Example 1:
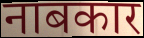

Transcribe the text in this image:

नाबकार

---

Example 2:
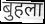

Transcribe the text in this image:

बुहला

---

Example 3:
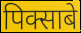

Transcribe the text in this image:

पिक्साबे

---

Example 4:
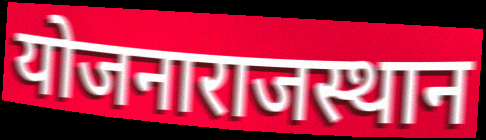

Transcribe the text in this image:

योजनाराजस्थान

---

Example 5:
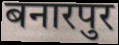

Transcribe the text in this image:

बनारपुर